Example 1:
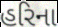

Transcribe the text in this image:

હરિના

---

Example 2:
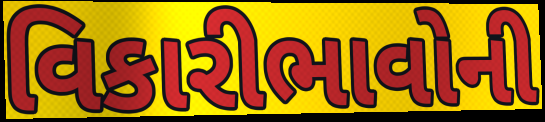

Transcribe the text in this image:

વિકારીભાવોની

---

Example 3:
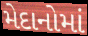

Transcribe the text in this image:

મેદાનોમાં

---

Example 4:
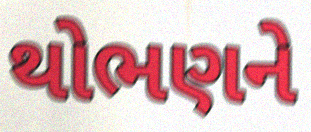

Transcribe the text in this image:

થોભણને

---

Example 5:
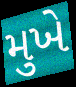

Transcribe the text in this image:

મુખે